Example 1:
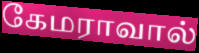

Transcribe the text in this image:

கேமராவால்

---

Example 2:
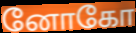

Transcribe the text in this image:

னோகோ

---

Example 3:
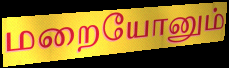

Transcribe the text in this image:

மறையோனும்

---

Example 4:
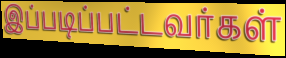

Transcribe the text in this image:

இப்படிப்பட்டவர்கள்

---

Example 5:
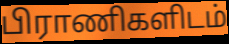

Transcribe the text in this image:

பிராணிகளிடம்